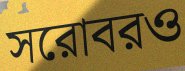
সরোবরও